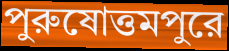
পুরুষোত্তমপুরে